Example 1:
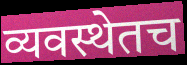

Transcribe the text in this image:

व्यवस्थेतच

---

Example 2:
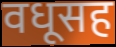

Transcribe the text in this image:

वधूसह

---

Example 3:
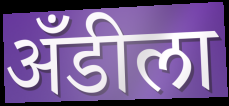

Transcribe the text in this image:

अँडीला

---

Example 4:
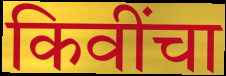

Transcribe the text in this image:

किवींचा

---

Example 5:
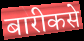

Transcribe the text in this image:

बारीकसे